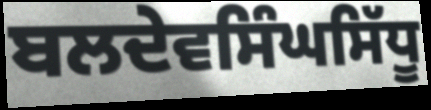
ਬਲਦੇਵਸਿੰਘਸਿੱਧੂ